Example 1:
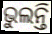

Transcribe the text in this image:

ଭୁଲନ୍ତି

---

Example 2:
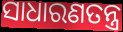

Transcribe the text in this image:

ସାଧାରଣତନ୍ତ୍ର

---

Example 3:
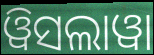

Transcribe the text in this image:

ୱିସଲାୱା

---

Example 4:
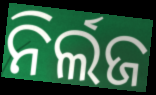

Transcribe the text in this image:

ନିର୍ଲଜ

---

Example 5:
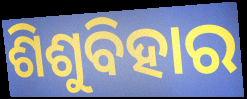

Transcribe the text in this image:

ଶିଶୁବିହାର